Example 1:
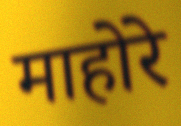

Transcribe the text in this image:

माहोरे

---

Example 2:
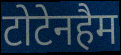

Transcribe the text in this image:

टोटेनहैम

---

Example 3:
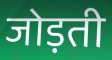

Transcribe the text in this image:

जोड़ती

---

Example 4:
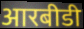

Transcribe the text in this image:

आरबीडी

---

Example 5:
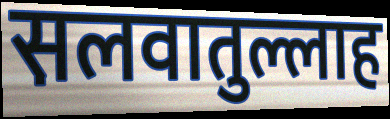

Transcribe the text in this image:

स़लवातुल्लाह